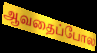
ஆவதைப்போல